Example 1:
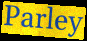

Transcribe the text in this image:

Parley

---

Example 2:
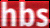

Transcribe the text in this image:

hbs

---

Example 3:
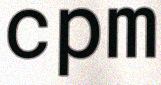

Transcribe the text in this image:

cpm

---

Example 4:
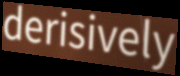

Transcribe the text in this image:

derisively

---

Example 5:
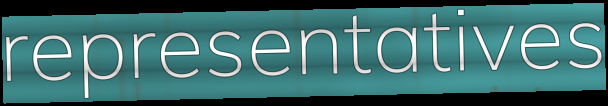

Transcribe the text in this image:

representatives